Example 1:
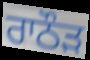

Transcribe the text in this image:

ਰਾਠੌੜ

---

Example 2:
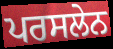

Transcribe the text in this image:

ਪਰਸਲੇਨ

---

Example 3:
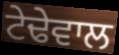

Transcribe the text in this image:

ਟੇਢੇਵਾਲ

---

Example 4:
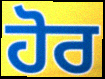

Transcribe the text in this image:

ਹੋਰ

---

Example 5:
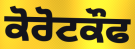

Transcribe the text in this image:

ਕੋਰੋਟਕੌਫ